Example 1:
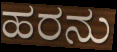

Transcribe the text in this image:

ಹರನು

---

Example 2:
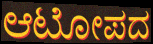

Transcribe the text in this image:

ಆಟೋಪದ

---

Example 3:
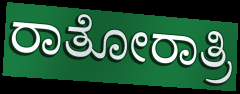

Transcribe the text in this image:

ರಾತೋರಾತ್ರಿ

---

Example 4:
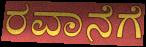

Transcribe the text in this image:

ರವಾನೆಗೆ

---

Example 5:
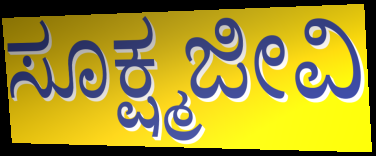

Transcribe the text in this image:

ಸೂಕ್ಷ್ಮಜೀವಿ